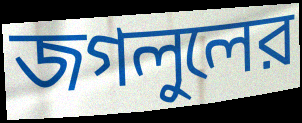
জগলুলের